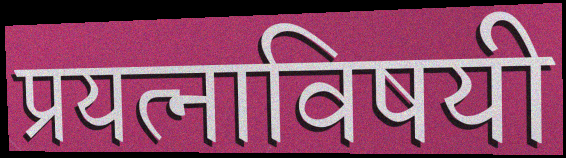
प्रयत्नाविषयी